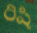
రిషి